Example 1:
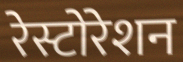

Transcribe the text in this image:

रेस्टोरेशन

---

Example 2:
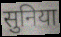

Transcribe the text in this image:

सुनिया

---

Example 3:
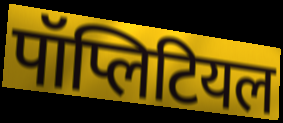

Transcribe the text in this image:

पॉप्लिटियल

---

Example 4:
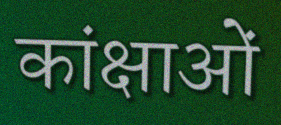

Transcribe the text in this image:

कांक्षाओं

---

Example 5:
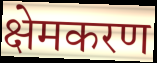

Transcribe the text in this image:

क्षेमकरण